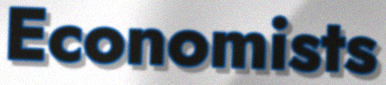
Economists